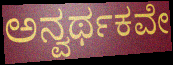
ಅನ್ವರ್ಥಕವೇ